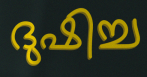
ദുഷിച്ച